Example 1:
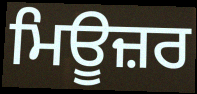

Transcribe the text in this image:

ਮਿਊਜ਼ਰ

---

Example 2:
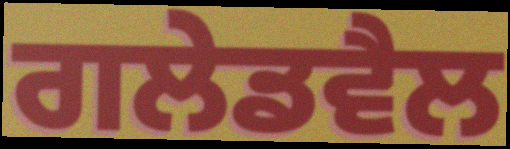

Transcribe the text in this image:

ਗਲੇਡਵੈਲ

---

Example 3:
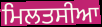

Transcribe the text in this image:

ਮਿਲਤਸੀਆ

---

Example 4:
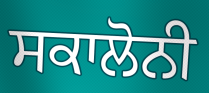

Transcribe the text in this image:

ਸਕਾਲੋਨੀ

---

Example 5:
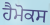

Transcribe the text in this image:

ਹੈਮੋਕਸ